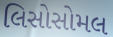
લિસોસોમલ